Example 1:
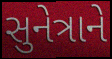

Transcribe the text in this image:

સુનેત્રાને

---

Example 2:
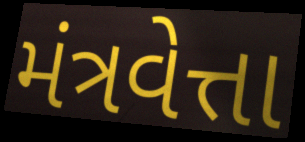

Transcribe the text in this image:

મંત્રવેત્તા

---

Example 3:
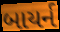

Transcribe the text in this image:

બાયર્ન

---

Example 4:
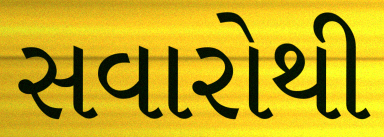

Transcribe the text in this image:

સવારોથી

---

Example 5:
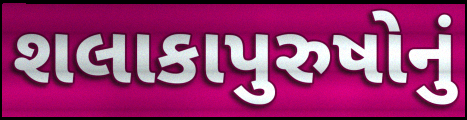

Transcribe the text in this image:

શલાકાપુરુષોનું